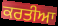
ਕਰਤੀਆ